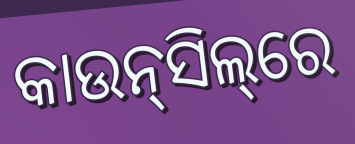
କାଉନ୍‌ସିଲ୍‌ରେ